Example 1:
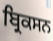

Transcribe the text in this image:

ਬ੍ਰਿਕਸਨ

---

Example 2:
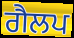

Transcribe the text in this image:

ਗੈਲਪ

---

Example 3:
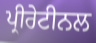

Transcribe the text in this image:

ਪ੍ਰੀਰੇਟੀਨਲ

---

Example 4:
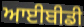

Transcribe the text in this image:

ਆਈਬੀਡੀ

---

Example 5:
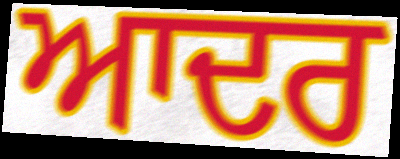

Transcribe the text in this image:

ਆਦਰ